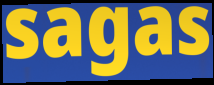
sagas